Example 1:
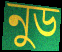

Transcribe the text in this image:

নুড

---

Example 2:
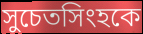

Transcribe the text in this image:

সুচেতসিংহকে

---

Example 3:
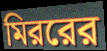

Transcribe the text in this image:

মিররের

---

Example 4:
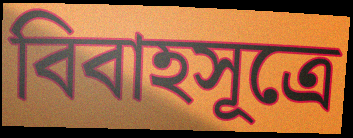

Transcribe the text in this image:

বিবাহসূত্রে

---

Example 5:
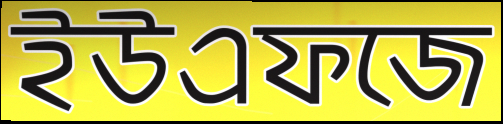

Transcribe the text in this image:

ইউএফজে